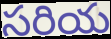
సరియ